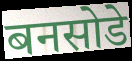
बनसोडे